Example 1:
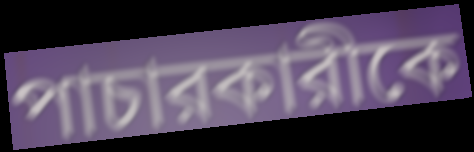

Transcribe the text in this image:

পাচারকারীকে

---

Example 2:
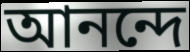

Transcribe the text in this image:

আনন্দে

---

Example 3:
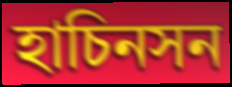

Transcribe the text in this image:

হাচিনসন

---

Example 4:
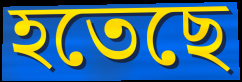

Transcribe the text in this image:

হতেছে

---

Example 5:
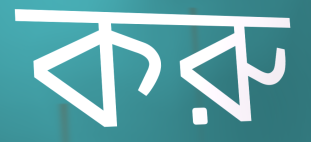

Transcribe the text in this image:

করু